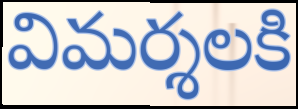
విమర్శలకి